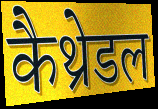
कैथ्रेडल